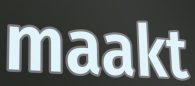
maakt